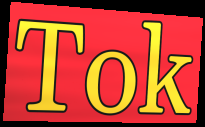
Tok